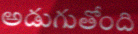
అడుగుతోంది